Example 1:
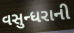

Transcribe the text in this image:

વસુન્ધરાની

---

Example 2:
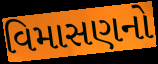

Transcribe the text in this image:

વિમાસણનો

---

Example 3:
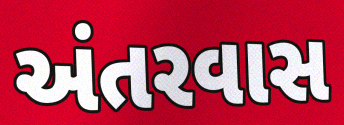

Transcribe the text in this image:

અંતરવાસ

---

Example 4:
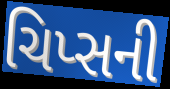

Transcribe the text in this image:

ચિપ્સની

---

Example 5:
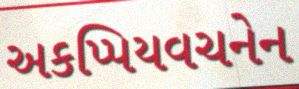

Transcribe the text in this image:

અકપ્પિયવચનેન